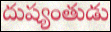
దుష్యంతుడు